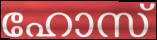
ഹോസ്